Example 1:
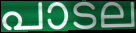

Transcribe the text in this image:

പാടല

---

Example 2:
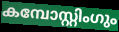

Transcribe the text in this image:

കമ്പോസ്റ്റിംഗും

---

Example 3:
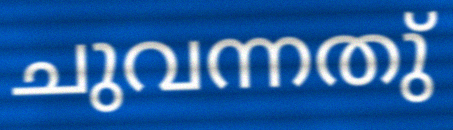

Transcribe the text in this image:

ചുവന്നതു്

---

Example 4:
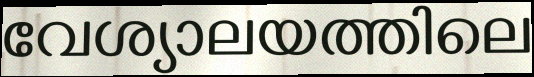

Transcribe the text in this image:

വേശ്യാലയത്തിലെ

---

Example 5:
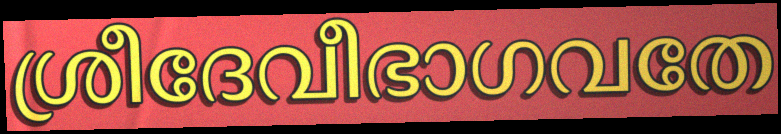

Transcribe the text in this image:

ശ്രീദേവീഭാഗവതേ